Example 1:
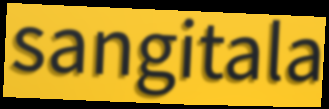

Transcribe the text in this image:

sangitala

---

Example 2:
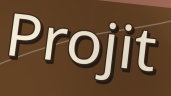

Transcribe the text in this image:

Projit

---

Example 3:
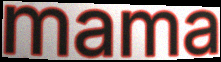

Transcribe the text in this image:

mama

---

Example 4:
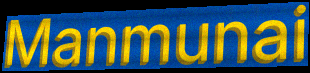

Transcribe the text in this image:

Manmunai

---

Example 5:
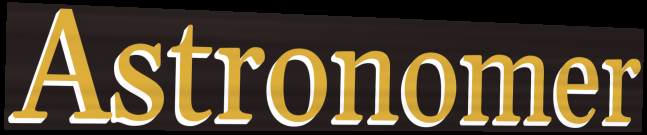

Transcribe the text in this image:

Astronomer